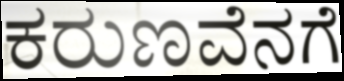
ಕರುಣವೆನಗೆ